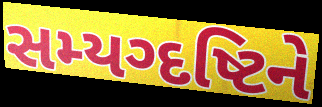
સમ્યગ્દષ્ટિને